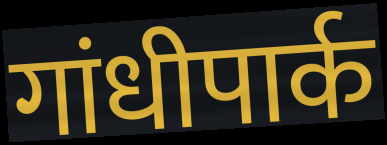
गांधीपार्क